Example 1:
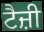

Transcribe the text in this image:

ਟੈਜ਼ੀ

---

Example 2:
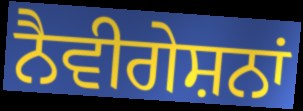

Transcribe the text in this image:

ਨੈਵੀਗੇਸ਼ਨਾਂ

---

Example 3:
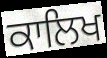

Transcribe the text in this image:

ਕਾਲਿਖ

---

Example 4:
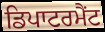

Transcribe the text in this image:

ਡਿਪਾਟਰਮੈਂਟ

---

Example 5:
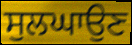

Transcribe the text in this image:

ਸੁਲਘਾਉਣ